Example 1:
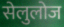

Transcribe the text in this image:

सेलुलोज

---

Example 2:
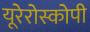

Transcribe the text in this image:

यूरेरोस्कोपी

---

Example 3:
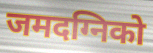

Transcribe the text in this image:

जमदग्निको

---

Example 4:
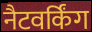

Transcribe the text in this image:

नैटवर्किंग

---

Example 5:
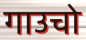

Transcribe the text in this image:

गाउचो